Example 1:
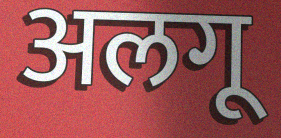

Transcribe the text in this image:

अलगू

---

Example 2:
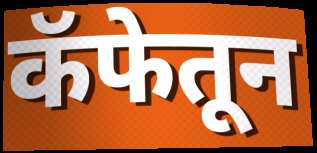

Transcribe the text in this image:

कॅफेतून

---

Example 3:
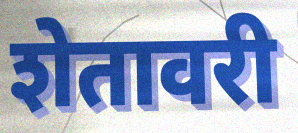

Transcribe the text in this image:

शेतावरी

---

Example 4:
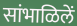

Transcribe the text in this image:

सांभाळिलें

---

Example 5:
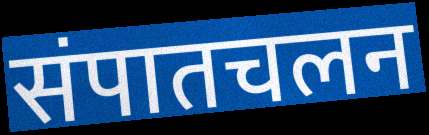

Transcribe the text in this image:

संपातचलन